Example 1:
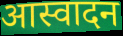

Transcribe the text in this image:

आस्वादन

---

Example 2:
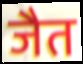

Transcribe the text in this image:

जैत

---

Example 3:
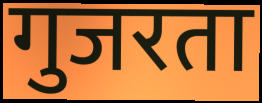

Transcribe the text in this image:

गुजरता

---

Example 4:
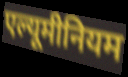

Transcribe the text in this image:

एल्यूमीनियम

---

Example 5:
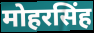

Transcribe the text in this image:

मोहरसिंह